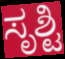
ಸೃಶ್ಟಿ